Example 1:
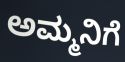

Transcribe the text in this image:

ಅಮ್ಮನಿಗೆ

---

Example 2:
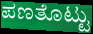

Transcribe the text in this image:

ಪಣತೊಟ್ಟು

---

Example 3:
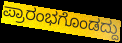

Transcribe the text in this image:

ಪ್ರಾರಂಭಗೊಂಡದ್ದು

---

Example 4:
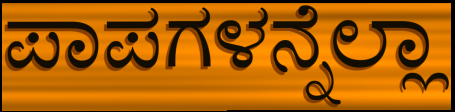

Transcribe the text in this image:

ಪಾಪಗಳನ್ನೆಲ್ಲಾ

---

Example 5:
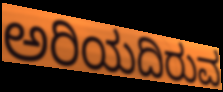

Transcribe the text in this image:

ಅರಿಯದಿರುವ